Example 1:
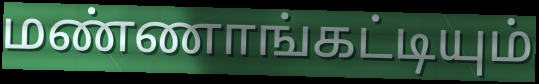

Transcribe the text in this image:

மண்ணாங்கட்டியும்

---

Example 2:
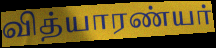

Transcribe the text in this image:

வித்யாரண்யர்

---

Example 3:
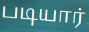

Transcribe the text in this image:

படியார்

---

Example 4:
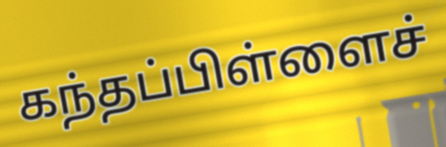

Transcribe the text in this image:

கந்தப்பிள்ளைச்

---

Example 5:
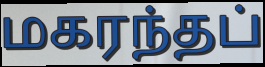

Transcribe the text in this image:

மகரந்தப்